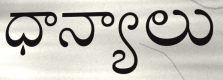
ధాన్యాలు